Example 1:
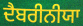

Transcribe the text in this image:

ਦੈਬਰੀਨੀਯਾ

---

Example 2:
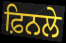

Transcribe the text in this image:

ਫ਼ਿਨਲੇ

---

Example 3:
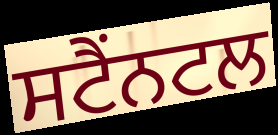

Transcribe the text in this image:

ਸਟੈਂਨਟਲ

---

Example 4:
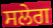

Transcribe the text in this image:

ਸਲੇਗ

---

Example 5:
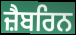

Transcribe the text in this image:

ਜ਼ੈਬਰਿਨ